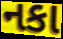
નકા